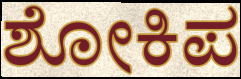
ಶೋಕಿಪ